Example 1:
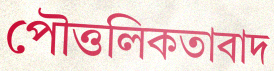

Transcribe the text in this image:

পৌত্তলিকতাবাদ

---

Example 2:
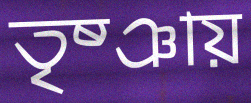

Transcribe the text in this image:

তৃষ্ঞায়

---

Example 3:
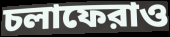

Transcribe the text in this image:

চলাফেরাও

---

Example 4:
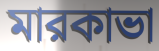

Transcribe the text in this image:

মারকাভা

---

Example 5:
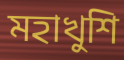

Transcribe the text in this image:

মহাখুশি